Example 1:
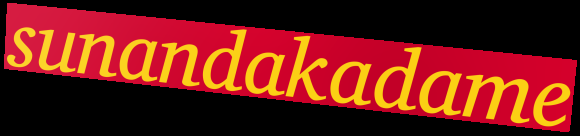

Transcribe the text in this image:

sunandakadame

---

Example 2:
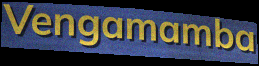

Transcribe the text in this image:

Vengamamba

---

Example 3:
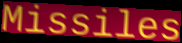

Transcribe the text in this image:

Missiles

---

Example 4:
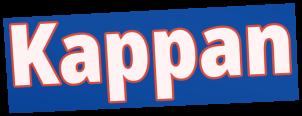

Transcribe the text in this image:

Kappan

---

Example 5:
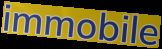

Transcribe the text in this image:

immobile